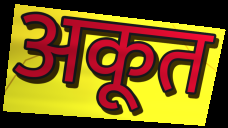
अकूत